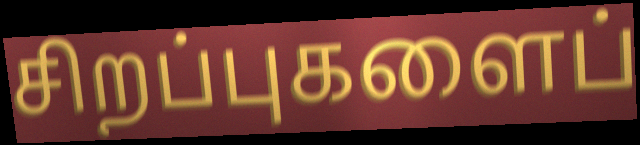
சிறப்புகளைப்